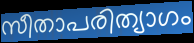
സീതാപരിത്യാഗം